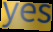
yes